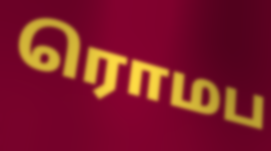
ரொமப